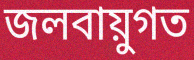
জলবায়ুগত